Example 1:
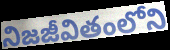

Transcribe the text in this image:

నిజజీవితంలోని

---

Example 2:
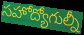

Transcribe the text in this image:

సహోద్యోగుల్నీ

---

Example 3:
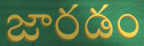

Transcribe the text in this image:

జారడం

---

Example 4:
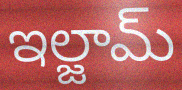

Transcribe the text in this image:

ఇల్జామ్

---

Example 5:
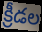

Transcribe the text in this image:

క్రీడల